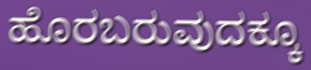
ಹೊರಬರುವುದಕ್ಕೂ